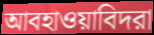
আবহাওয়াবিদরা